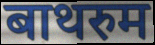
बाथरुम